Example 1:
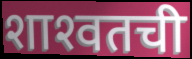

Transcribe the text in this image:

शाश्वतची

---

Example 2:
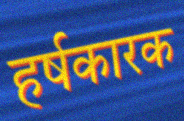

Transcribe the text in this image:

हर्षकारक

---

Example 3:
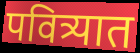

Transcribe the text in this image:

पवित्र्यात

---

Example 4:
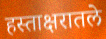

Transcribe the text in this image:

हस्ताक्षरातले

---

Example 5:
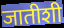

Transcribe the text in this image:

जातीशी